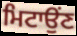
ਮਿਟਾਉਂਣ